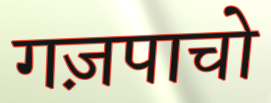
गज़पाचो